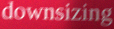
downsizing